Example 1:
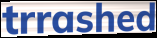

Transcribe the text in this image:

trrashed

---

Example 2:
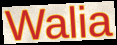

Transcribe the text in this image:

Walia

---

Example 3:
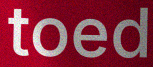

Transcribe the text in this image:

toed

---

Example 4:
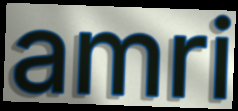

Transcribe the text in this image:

amri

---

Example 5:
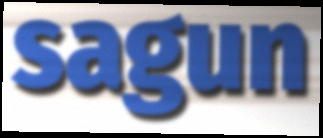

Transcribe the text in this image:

sagun